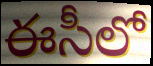
ఈసీలో